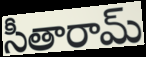
సీతారామ్